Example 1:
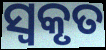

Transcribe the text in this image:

ସ୍ୱକୃତ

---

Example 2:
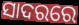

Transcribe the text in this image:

ସାଦରରେ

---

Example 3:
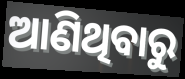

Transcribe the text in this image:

ଆଣିଥିବାରୁ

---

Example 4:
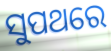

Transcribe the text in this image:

ସୁପଥରେ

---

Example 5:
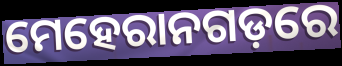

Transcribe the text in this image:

ମେହେରାନଗଡ଼ରେ